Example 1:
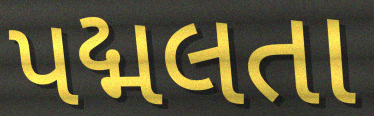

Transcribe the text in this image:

પદ્મલતા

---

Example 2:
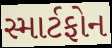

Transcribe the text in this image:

સ્માર્ટફોન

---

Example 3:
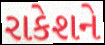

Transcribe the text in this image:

રાકેશને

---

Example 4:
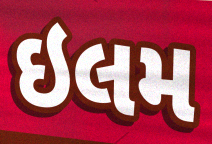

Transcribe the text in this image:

ઇલમ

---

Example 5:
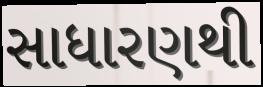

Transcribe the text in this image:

સાધારણથી